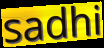
sadhi